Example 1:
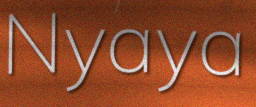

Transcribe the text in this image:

Nyaya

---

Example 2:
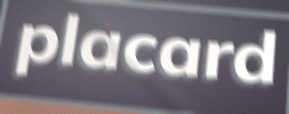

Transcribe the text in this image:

placard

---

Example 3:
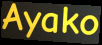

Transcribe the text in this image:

Ayako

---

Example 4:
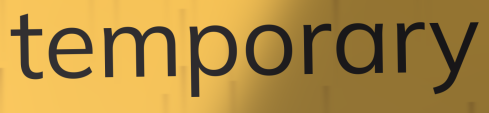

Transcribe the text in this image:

temporary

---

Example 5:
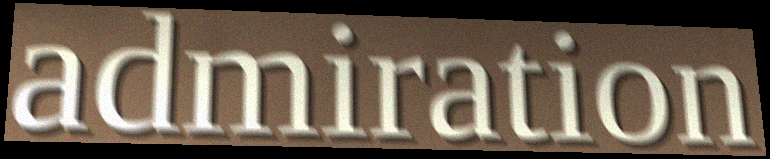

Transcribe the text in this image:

admiration